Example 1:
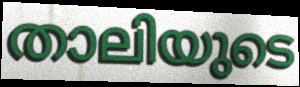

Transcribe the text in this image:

താലിയുടെ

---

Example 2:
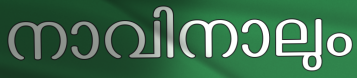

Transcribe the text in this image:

നാവിനാലും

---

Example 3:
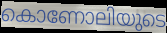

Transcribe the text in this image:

കൊണോലിയുടെ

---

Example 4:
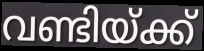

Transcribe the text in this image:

വണ്ടിയ്ക്ക്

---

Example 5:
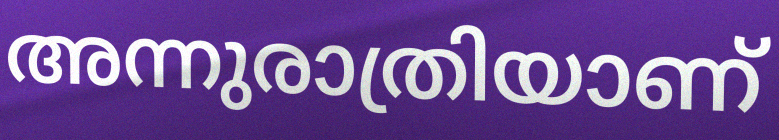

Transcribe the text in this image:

അന്നുരാത്രിയാണ്